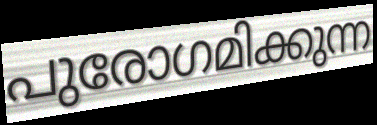
പുരോഗമിക്കുന്ന